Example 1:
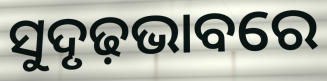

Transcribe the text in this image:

ସୁଦୃଢ଼ଭାବରେ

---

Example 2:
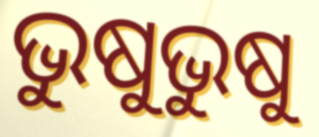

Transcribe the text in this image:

ଭୁଷୁଭୁଷୁ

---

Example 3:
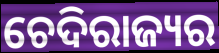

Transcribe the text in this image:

ଚେଦିରାଜ୍ୟର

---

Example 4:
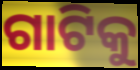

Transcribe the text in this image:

ଗାଟିକୁ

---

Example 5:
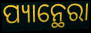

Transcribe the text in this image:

ପ୍ୟାନ୍ଥେରା